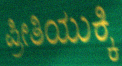
ಪ್ರೀತಿಯುಕ್ಕಿ